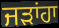
ਜੜਾਂਹਾ